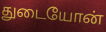
துடையோன்